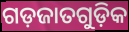
ଗଡ଼ଜାତଗୁଡ଼ିକ